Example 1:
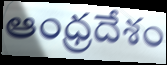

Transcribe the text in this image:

ఆంధ్రదేశం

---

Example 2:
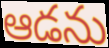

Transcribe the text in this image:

ఆడను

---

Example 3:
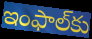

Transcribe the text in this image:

ఇంఫాల్‌కు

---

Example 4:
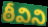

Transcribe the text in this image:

ఠీవిని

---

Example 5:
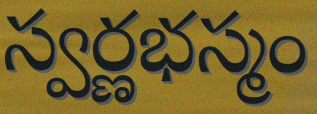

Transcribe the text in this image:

స్వర్ణభస్మం